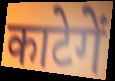
काटेगें